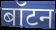
बॉटन